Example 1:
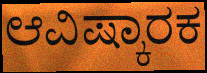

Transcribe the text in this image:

ಆವಿಷ್ಕಾರಕ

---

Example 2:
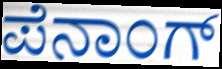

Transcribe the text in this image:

ಪೆನಾಂಗ್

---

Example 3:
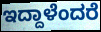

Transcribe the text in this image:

ಇದ್ದಾಳೆಂದರೆ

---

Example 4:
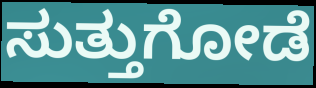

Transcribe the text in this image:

ಸುತ್ತುಗೋಡೆ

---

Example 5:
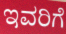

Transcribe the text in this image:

ಇವರಿಗೆ